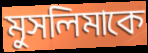
মুসলিমাকে